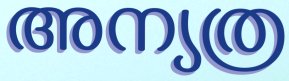
അന്യത്ര